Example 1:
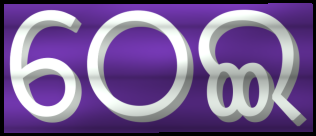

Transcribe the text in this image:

ଠେଇ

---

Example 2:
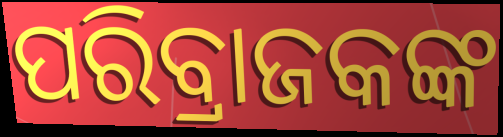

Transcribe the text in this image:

ପରିବ୍ରାଜକଙ୍କ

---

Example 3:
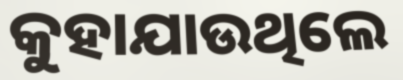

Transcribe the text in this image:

କୁହାଯାଉଥିଲେ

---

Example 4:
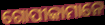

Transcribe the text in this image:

ଗୋପୀକାମାନେ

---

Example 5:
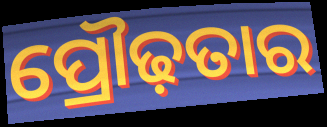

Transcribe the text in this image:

ପ୍ରୌଢ଼ତାର